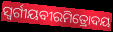
ସ୍ୱର୍ଗୀୟବୀରମିତ୍ରୋଦୟ